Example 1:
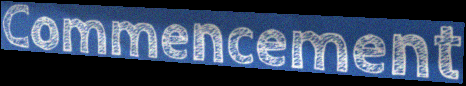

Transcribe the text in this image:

Commencement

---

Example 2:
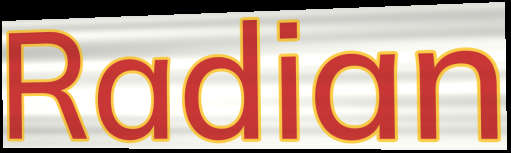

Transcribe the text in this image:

Radian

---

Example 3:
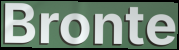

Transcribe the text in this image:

Bronte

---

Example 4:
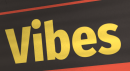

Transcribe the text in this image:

Vibes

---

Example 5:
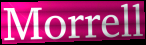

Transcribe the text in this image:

Morrell